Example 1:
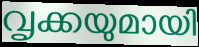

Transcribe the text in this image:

വൃക്കയുമായി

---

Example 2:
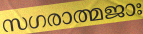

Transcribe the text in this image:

സഗരാത്മജാഃ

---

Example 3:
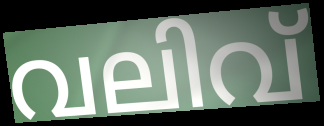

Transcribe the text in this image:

വലിവ്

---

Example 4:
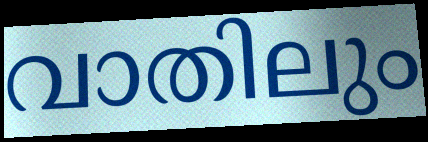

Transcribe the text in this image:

വാതിലും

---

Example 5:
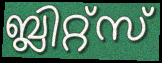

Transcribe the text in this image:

ബ്ലിറ്റ്സ്